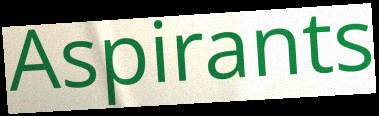
Aspirants